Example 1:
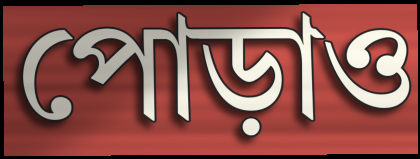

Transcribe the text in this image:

পোড়াও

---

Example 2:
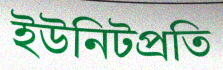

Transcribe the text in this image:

ইউনিটপ্রতি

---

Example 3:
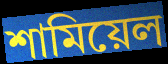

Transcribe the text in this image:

শামিয়েল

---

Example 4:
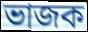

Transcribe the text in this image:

ভাজক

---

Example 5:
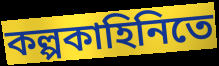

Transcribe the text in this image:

কল্পকাহিনিতে